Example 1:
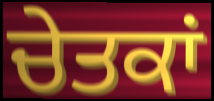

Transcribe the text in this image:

ਚੇਤਕਾਂ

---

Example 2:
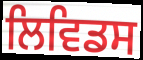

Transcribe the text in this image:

ਲਿਵਿਡਸ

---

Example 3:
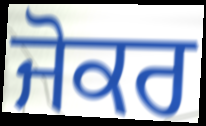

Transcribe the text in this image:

ਜੋਕਰ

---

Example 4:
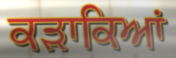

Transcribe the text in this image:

ਕੜਾਕਿਆਂ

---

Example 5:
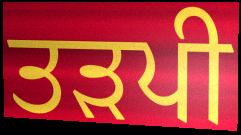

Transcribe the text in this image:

ਤੜਪੀ